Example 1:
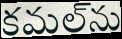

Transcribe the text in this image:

కమల్‌ను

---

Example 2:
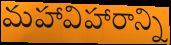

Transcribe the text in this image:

మహావిహారాన్ని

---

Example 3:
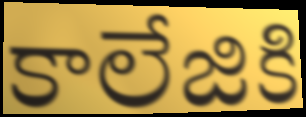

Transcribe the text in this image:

కాలేజికి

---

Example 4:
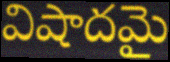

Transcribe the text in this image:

విషాదమై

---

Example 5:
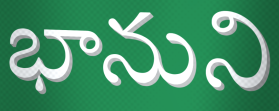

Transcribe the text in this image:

భానుని